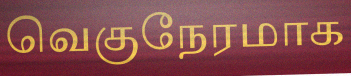
வெகுநேரமாக